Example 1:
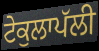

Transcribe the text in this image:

ਟੇਕੁਲਾਪੱਲੀ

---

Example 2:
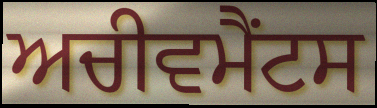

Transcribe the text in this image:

ਅਚੀਵਮੈਂਟਸ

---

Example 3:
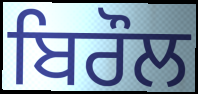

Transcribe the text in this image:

ਬਿਰੌਲ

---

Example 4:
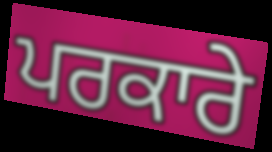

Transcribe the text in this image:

ਪਰਕਾਰੇ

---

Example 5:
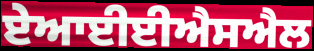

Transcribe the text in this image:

ਏਆਈਈਐਸਐਲ